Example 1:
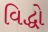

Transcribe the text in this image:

વિદ્ધો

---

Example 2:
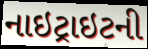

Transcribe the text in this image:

નાઇટ્રાઇટની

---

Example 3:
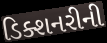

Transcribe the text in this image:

ડિક્શનરીની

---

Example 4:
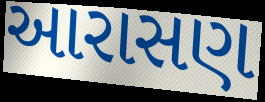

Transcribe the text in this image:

આરાસણ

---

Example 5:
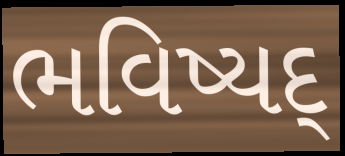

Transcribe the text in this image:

ભવિષ્યદ્